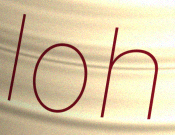
loh